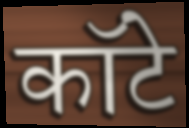
कॉटे